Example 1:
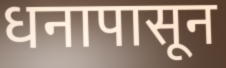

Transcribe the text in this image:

धनापासून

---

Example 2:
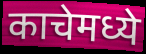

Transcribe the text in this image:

काचेमध्ये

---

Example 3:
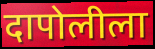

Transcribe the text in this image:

दापोलीला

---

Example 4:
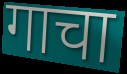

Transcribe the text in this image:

गाचा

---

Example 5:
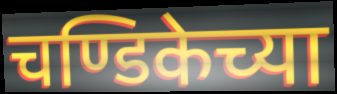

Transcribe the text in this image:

चण्डिकेच्या